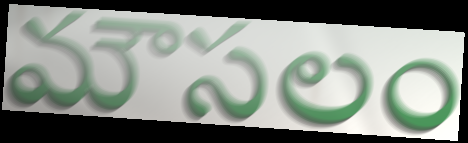
మౌసలం